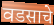
वडसाचे